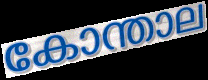
കോന്താല